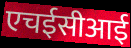
एचईसीआई